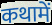
कथामें